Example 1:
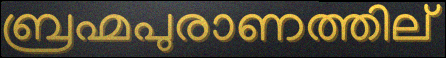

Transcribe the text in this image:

ബ്രഹ്മപുരാണത്തില്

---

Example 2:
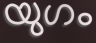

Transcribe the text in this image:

യുഗം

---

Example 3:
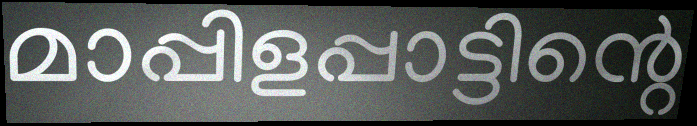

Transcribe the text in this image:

മാപ്പിളപ്പാട്ടിന്റെ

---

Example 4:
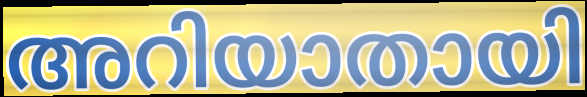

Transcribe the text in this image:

അറിയാതായി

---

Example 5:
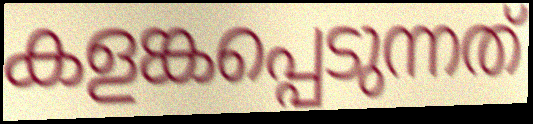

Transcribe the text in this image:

കളങ്കപ്പെടുന്നത്